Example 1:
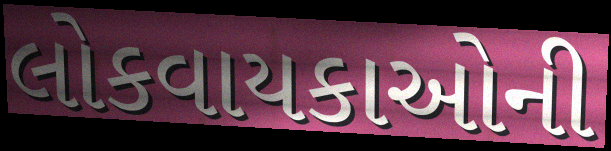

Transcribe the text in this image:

લોકવાયકાઓની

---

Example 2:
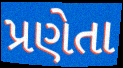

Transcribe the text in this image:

પ્રણેતા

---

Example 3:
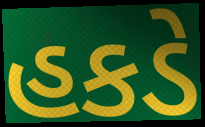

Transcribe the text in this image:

હકડે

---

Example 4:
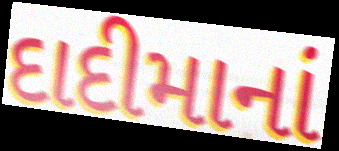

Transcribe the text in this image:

દાદીમાનાં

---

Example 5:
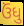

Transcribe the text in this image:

ઉંધુ